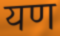
यण